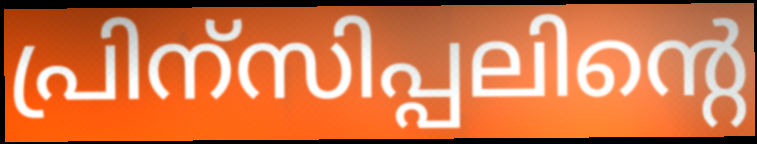
പ്രിന്സിപ്പലിന്റെ